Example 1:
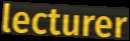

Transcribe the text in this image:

lecturer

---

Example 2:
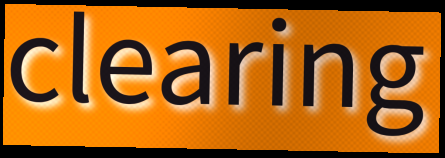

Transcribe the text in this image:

clearing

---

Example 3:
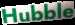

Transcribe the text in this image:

Hubble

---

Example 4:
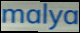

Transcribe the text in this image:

malya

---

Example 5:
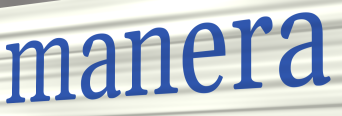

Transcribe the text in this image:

manera